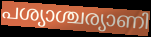
പശ്യാശ്ചര്യാണി